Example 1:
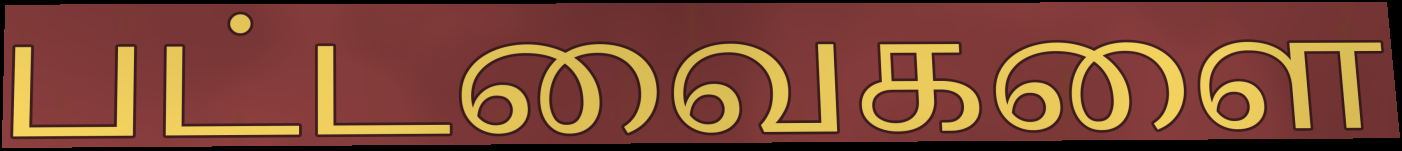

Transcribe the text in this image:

பட்டவைகளை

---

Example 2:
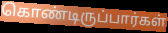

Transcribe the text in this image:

கொண்டிருப்பார்கள்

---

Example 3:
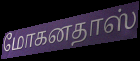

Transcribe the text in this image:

மோகனதாஸ்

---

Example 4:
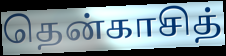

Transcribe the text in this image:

தென்காசித்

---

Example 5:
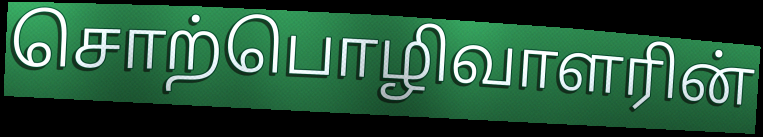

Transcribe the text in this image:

சொற்பொழிவாளரின்